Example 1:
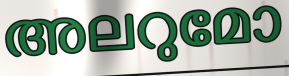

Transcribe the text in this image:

അലറുമോ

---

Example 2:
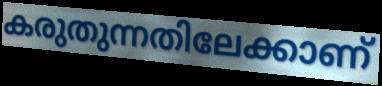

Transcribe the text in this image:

കരുതുന്നതിലേക്കാണ്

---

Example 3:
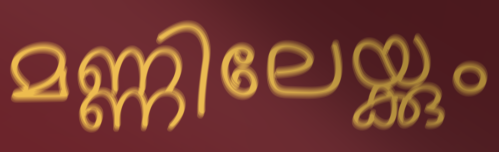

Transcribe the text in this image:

മണ്ണിലേയ്ക്കും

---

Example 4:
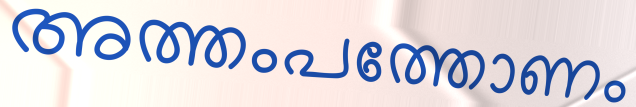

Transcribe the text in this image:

അത്തംപത്തോണം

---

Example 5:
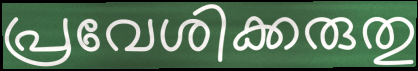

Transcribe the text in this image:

പ്രവേശിക്കരുതു